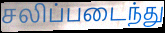
சலிப்படைந்து